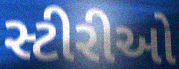
સ્ટીરીઓ